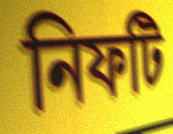
নিফটি